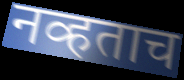
नव्हताच